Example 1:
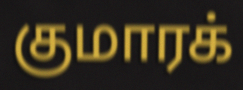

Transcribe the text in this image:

குமாரக்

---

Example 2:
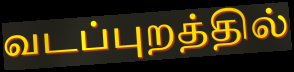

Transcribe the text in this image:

வடப்புறத்தில்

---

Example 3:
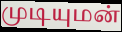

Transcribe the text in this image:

முடியுமன்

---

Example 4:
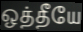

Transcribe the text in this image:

ஒத்தீயே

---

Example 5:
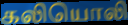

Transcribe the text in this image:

கலியொலி